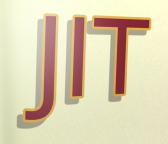
JIT